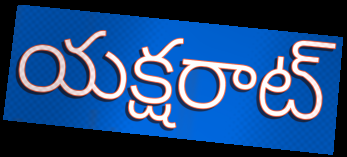
యక్షరాట్